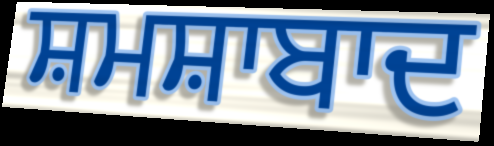
ਸ਼ਮਸ਼ਾਬਾਦ